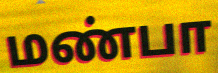
மண்பா